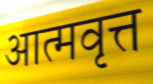
आत्मवृत्त